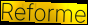
Reforme